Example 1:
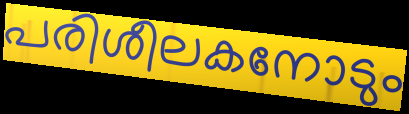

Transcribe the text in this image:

പരിശീലകനോടും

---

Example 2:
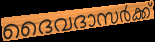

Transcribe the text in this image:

ദൈവദാസർക്ക്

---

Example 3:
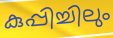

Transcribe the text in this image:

കുപ്പിച്ചിലും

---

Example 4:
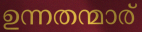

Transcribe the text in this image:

ഉന്നതന്മാര്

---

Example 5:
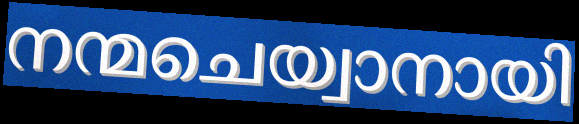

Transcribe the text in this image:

നന്മചെയ്വാനായി